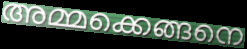
അമ്മക്കെങ്ങനെ